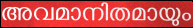
അവമാനിതമായും